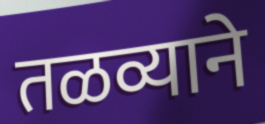
तळव्याने